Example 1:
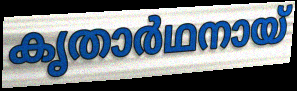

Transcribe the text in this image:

കൃതാർഥനായ്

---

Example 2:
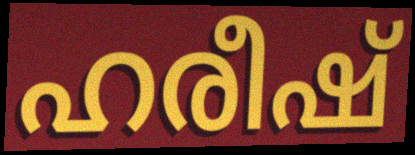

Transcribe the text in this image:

ഹരീഷ്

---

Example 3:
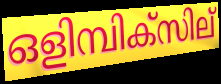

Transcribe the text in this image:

ഒളിമ്പിക്സില്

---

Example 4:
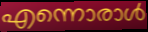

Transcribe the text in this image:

എന്നൊരാൾ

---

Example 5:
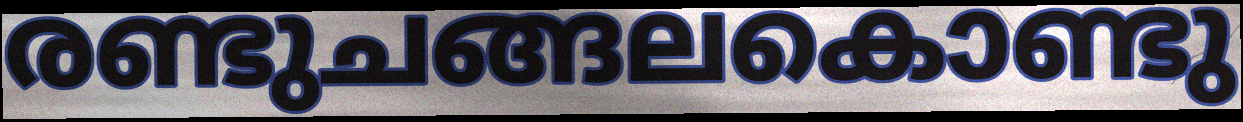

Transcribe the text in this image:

രണ്ടുചങ്ങലകൊണ്ടു